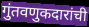
गुंतवणुकदारांची